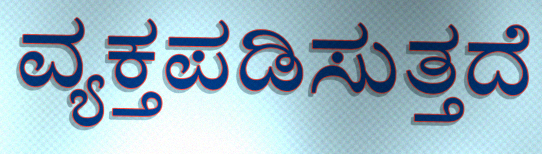
ವ್ಯಕ್ತಪಡಿಸುತ್ತದೆ